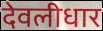
देवलीधार